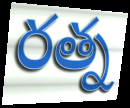
రత్న